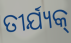
ତୀର୍ଯ୍ୟକ୍